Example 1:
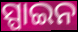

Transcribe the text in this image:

ସ୍ପାଇନ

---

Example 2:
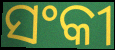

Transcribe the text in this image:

ସଂକୀ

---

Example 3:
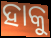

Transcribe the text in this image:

ହାକୁ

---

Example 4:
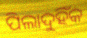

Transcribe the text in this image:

ପିଲାଦୁହିଁକ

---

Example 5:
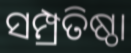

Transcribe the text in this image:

ସମ୍ପ୍ରତିଷ୍ଠା